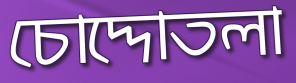
চোদ্দোতলা